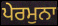
ਪੇਰਮੁਨਾ